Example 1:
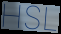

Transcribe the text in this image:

HSL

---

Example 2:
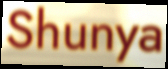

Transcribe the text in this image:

Shunya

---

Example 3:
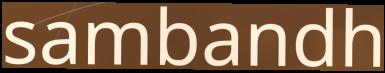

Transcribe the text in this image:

sambandh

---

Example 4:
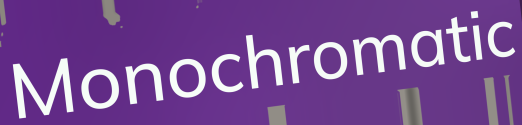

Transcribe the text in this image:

Monochromatic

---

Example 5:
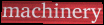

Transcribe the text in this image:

machinery